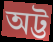
অট্ট